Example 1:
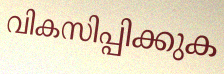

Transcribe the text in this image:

വികസിപ്പിക്കുക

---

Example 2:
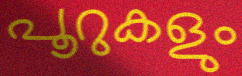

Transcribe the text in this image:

പൂറുകളും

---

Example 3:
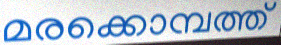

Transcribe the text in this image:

മരക്കൊമ്പത്ത്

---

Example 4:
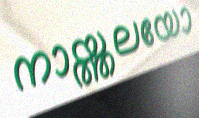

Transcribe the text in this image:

നായ്ത്തലയോ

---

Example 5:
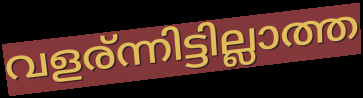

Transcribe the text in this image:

വളര്ന്നിട്ടില്ലാത്ത